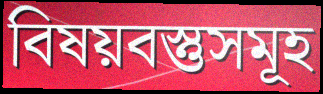
বিষয়বস্তুসমূহ